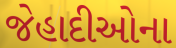
જેહાદીઓના